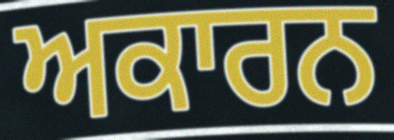
ਅਕਾਰਨ